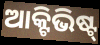
ଆକ୍ଟିଭିଷ୍ଟ୍